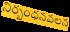
నిర్బంధనవలన